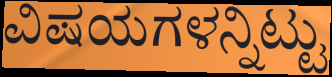
ವಿಷಯಗಳನ್ನಿಟ್ಟು